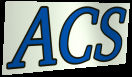
ACS